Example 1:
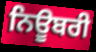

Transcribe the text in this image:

ਨਿਊਬਰੀ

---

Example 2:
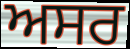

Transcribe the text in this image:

ਅਸਰ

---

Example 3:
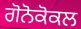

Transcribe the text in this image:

ਗੋਨੋਕੋਕਲ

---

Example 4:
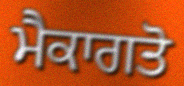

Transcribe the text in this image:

ਮੈਕਾਗਤੋ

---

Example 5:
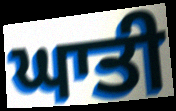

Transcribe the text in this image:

ਘਾਤੀ